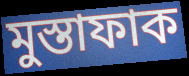
মুস্তাফাক